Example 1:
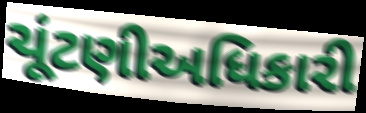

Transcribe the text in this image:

ચૂંટણીઅધિકારી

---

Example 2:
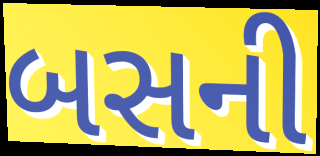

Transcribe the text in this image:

બસની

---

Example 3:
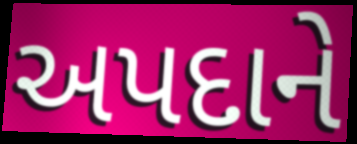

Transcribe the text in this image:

અપદાને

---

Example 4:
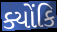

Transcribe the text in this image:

ક્યોંકિ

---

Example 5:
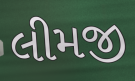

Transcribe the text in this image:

લીમજી